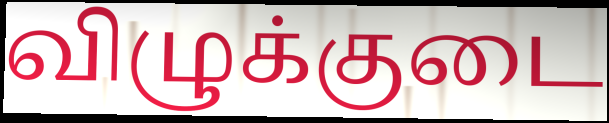
விழுக்குடை